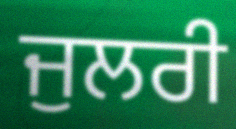
ਜੁਲਰੀ